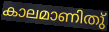
കാലമാണിതു്